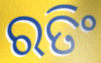
ରତିଂ